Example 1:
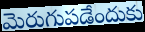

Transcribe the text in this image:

మెరుగుపడేందుకు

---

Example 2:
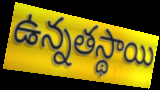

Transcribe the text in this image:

ఉన్నతస్థాయి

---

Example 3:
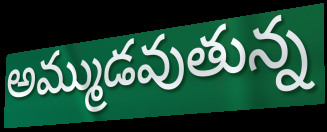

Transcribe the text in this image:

అమ్ముడవుతున్న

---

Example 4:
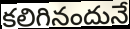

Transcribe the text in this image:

కలిగినందునే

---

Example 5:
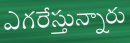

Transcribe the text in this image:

ఎగరేస్తున్నారు